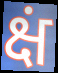
क्षं